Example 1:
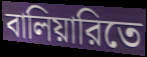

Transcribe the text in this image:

বালিয়ারিতে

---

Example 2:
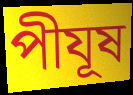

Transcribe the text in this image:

পীযূষ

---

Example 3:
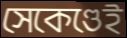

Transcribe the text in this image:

সেকেণ্ডেই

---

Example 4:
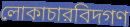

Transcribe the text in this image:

লোকাচারবিদগণ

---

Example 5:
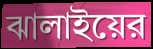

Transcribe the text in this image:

ঝালাইয়ের